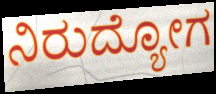
ನಿರುದ್ಯೋಗ